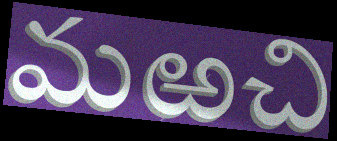
మఱచి